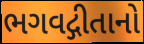
ભગવદ્ગીતાનો